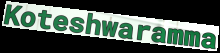
Koteshwaramma